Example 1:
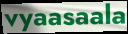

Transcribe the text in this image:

vyaasaala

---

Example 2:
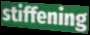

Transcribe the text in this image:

stiffening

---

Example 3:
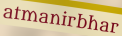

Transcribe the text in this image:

atmanirbhar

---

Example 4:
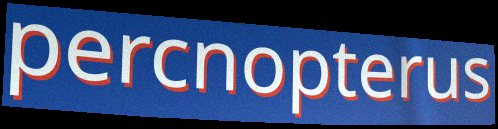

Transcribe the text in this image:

percnopterus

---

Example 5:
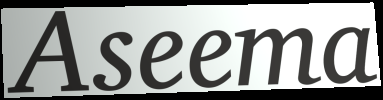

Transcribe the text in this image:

Aseema